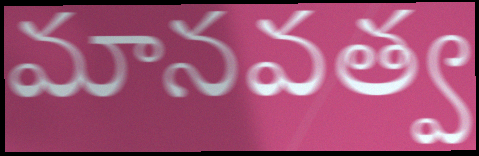
మానవత్వ